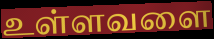
உள்ளவளை